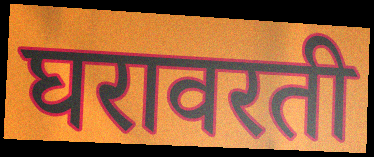
घरावरती